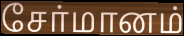
சேர்மானம்